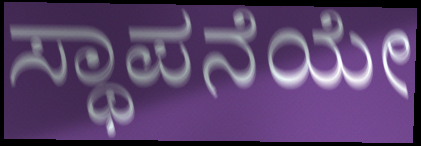
ಸ್ಥಾಪನೆಯೇ